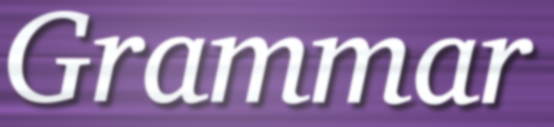
Grammar